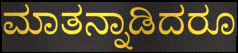
ಮಾತನ್ನಾಡಿದರೂ